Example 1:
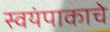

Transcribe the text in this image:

स्वयंपाकाचे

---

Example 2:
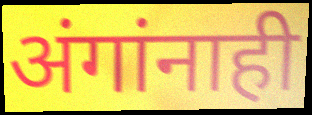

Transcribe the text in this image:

अंगांनाही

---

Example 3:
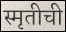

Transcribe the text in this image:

स्मृतीची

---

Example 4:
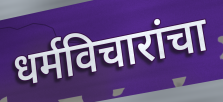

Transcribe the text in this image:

धर्मविचारांचा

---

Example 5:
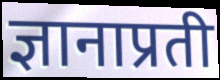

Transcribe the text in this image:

ज्ञानाप्रती